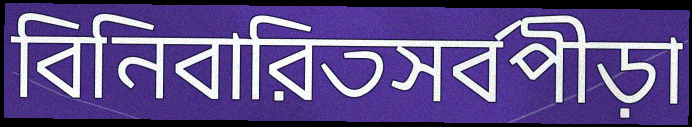
বিনিবারিতসর্বপীড়া